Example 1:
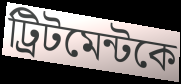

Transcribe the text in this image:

ট্রিটমেন্টকে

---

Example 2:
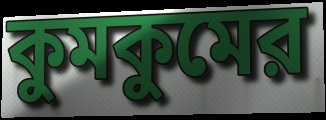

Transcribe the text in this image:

কুমকুমের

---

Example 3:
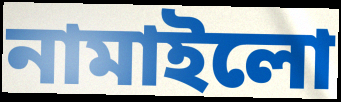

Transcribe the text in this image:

নামাইলো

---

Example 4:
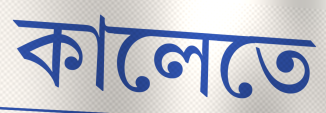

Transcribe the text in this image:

কালেতে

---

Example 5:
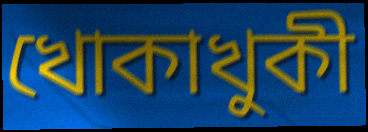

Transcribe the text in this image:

খোকাখুকী